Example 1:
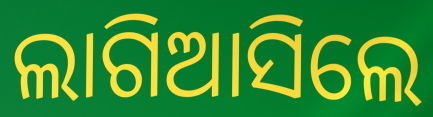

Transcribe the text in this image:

ଲାଗିଆସିଲେ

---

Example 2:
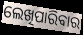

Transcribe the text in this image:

ଲେଖିପାରିବାର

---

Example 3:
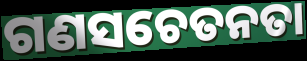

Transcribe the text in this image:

ଗଣସଚେତନତା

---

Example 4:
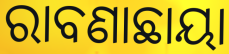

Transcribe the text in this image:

ରାବଣାଛାୟା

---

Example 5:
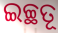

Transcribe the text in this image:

ଇଚ୍ଛତୂ